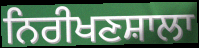
ਨਿਰੀਖਣਸ਼ਾਲਾ